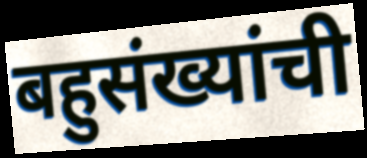
बहुसंख्यांची